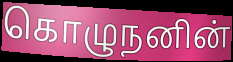
கொழுநனின்